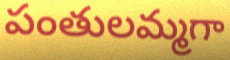
పంతులమ్మగా